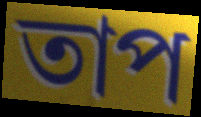
তাপ